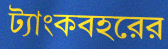
ট্যাংকবহরের